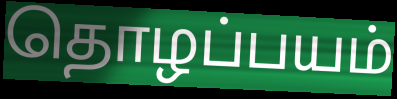
தொழப்பயம்